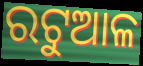
ରଟୁଆଳ